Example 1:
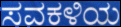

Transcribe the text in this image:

ಸವಕಳಿಯ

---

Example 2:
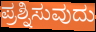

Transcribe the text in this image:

ಪ್ರಶ್ನಿಸುವುದು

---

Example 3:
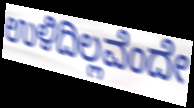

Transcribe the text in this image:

ಉಳಿದಿಲ್ಲವೆಂದೇ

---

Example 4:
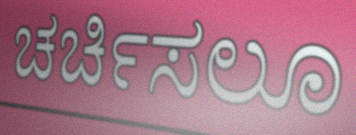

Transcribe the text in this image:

ಚರ್ಚಿಸಲೂ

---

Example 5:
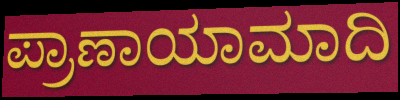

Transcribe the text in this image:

ಪ್ರಾಣಾಯಾಮಾದಿ